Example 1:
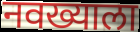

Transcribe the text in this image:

नवख्याला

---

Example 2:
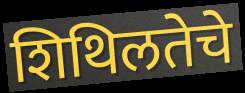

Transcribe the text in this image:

शिथिलतेचे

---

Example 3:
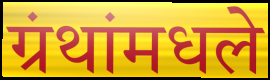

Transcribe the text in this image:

ग्रंथांमधले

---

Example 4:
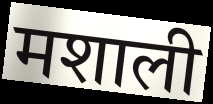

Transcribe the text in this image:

मशाली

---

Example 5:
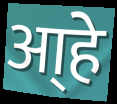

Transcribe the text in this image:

आ्हे